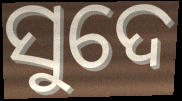
ସୁଦେ